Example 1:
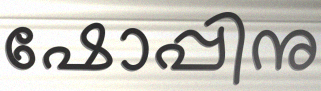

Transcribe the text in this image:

ഷോപ്പിനു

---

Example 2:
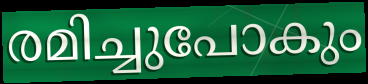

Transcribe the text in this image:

രമിച്ചുപോകും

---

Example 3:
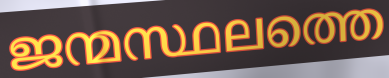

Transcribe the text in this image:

ജന്മസ്ഥലത്തെ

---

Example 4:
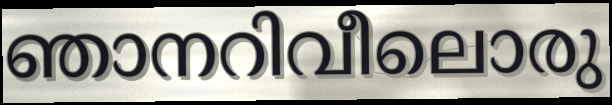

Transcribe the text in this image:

ഞാനറിവീലൊരു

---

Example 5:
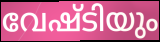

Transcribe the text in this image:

വേഷ്ടിയും